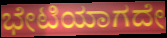
ಭೇಟಿಯಾಗದೇ